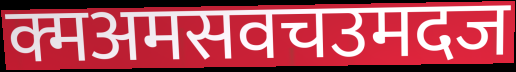
क्मअमसवचउमदज